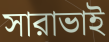
সারাভাই